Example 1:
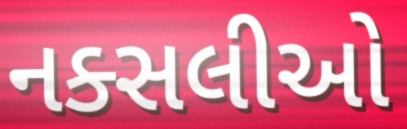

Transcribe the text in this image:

નક્સલીઓ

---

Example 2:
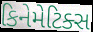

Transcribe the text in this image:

કિનેમેટિક્સ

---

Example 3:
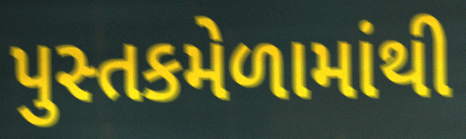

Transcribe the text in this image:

પુસ્તકમેળામાંથી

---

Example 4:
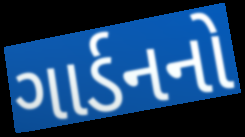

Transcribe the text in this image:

ગાર્ડનનો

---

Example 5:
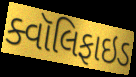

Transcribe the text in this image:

ક્વૉલિફાઇડ